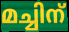
മച്ചിന്